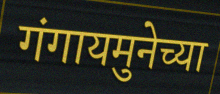
गंगायमुनेच्या